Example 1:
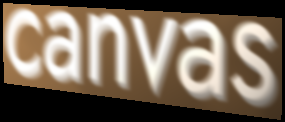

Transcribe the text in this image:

canvas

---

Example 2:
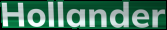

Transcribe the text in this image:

Hollander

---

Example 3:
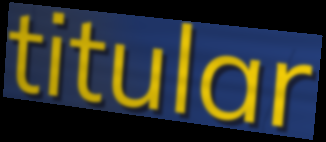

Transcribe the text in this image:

titular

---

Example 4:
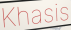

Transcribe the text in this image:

Khasis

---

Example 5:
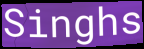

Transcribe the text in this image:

Singhs